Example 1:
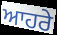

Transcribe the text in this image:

ਆਹਰੇ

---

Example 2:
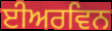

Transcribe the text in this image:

ਈਅਰਵਿਨ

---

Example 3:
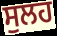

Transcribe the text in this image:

ਸੁਲਹ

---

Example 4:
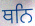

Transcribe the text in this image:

ਥਨਿ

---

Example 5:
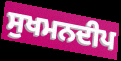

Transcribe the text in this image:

ਸੁਖਮਨਦੀਪ